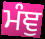
ਮੰਞੁ